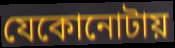
যেকোনোটায়